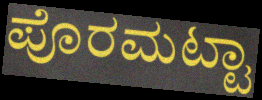
ಪೊರಮಟ್ಟಾ